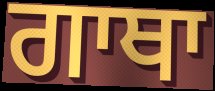
ਗਾਥਾ